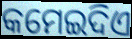
କମେଇଦିଏ